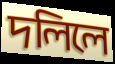
দলিলে